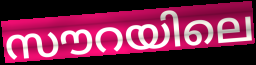
സൗറയിലെ